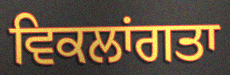
ਵਿਕਲਾਂਗਤਾ